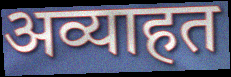
अव्याहत